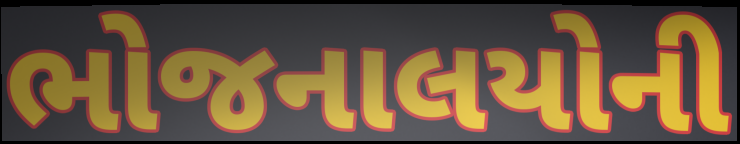
ભોજનાલયોની